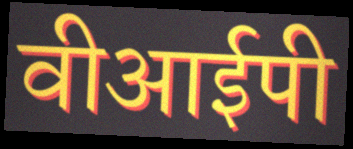
वीआईपी